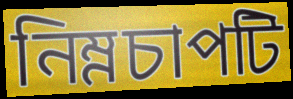
নিম্নচাপটি